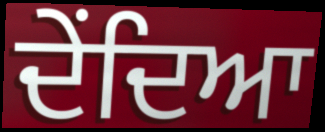
ਦੇਂਦਿਆ